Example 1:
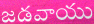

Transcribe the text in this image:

జడవాయు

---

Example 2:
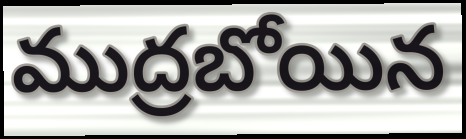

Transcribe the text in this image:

ముద్రబోయిన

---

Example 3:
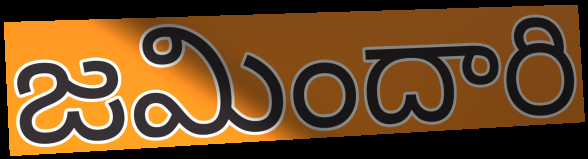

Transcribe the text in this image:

జమిందారి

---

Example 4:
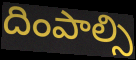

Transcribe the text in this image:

దింపాల్సి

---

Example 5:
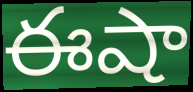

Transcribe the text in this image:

ఈషా